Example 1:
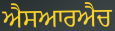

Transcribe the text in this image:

ਐਸਆਰਐਚ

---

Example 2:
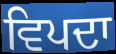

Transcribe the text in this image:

ਵਿਪਦਾ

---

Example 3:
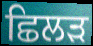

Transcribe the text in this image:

ਛਿਲੜ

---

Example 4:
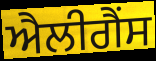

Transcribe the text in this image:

ਐਲੀਗੈਂਸ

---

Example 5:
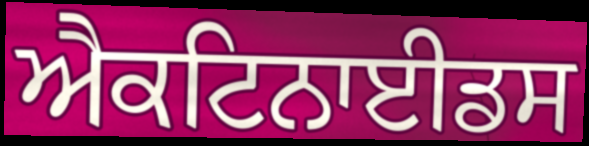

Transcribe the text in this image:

ਐਕਟਿਨਾਈਡਸ